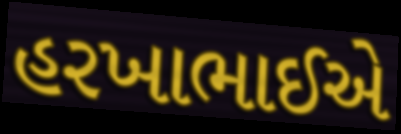
હરખાભાઈએ